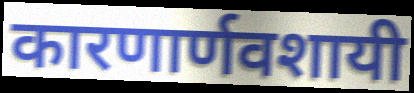
कारणार्णवशायी